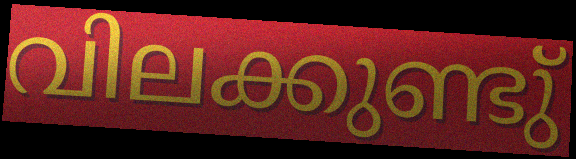
വിലക്കുണ്ടു്